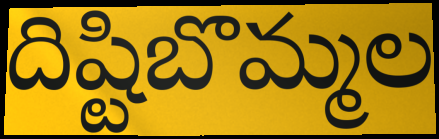
దిష్టిబొమ్మల